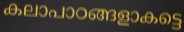
കലാപാഠങ്ങളാകട്ടെ